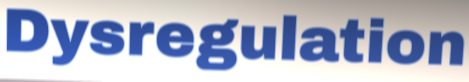
Dysregulation